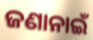
ଜଣାନାଇଁ